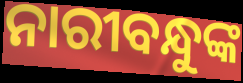
ନାରୀବନ୍ଧୁଙ୍କ